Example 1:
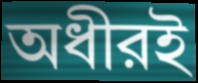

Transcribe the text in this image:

অধীরই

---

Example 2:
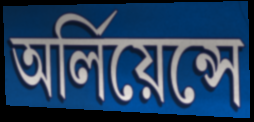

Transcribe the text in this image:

অর্লিয়েন্সে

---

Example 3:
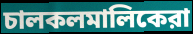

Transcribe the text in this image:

চালকলমালিকেরা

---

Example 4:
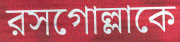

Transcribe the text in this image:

রসগোল্লাকে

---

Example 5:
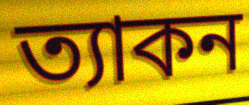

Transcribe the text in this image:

ত্যাকন